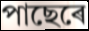
পাছেৰে